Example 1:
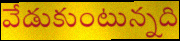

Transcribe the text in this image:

వేడుకుంటున్నది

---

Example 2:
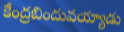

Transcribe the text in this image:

కేంద్రబిందువయ్యాడు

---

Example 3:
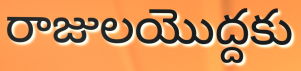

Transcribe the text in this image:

రాజులయొద్దకు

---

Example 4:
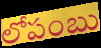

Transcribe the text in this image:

లోపంబు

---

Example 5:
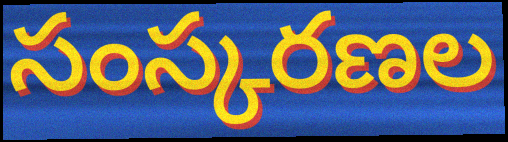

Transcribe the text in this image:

సంస్కరణల